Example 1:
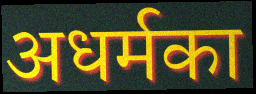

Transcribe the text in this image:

अधर्मका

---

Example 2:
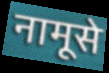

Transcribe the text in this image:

नामूसे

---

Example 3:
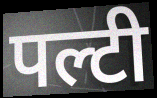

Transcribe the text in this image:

पल्टी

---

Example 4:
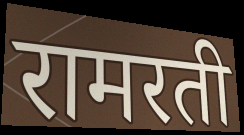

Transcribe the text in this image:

रामरती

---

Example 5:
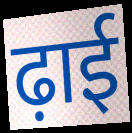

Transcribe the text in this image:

ढ़ाई